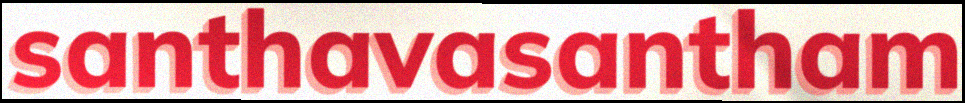
santhavasantham